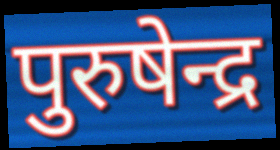
पुरुषेन्द्र